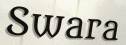
Swara